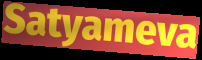
Satyameva